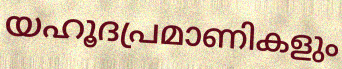
യഹൂദപ്രമാണികളും